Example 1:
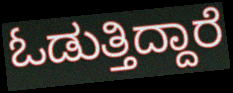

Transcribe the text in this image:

ಓಡುತ್ತಿದ್ದಾರೆ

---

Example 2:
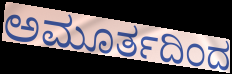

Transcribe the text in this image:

ಅಮೂರ್ತದಿಂದ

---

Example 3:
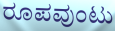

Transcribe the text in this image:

ರೂಪವುಂಟು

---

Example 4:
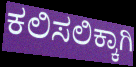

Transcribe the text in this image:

ಕಲಿಸಲಿಕ್ಕಾಗಿ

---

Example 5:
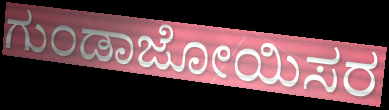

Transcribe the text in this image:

ಗುಂಡಾಜೋಯಿಸರ